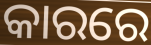
କାରରେ